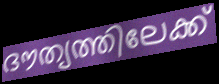
ദൗത്യത്തിലേക്ക്